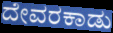
ದೇವರಕಾಡು